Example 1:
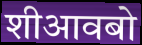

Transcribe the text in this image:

शीआवबो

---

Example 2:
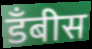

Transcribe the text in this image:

डॅंबीस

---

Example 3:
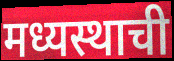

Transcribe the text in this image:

मध्यस्थाची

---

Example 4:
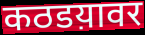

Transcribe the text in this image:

कठडय़ावर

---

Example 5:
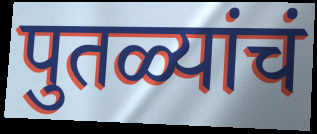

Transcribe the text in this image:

पुतळ्यांचं